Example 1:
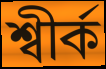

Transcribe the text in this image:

শ্বীৰ্ক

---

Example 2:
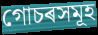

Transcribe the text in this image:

গোচৰসমূহ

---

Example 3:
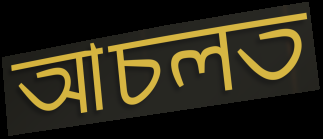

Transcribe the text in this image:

আচলত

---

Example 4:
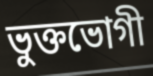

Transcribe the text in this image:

ভুক্তভোগী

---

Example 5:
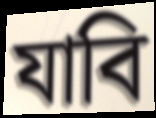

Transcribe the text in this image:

যাবি